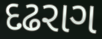
દઢરાગ